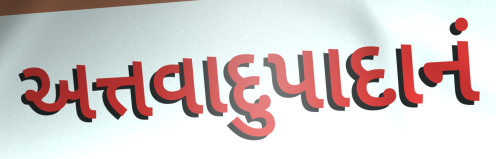
અત્તવાદુપાદાનં